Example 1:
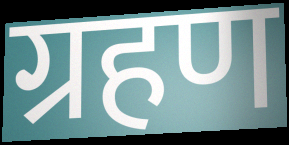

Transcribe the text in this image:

ग्रहण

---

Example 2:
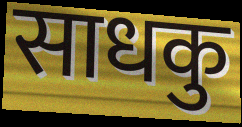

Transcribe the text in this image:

साधकु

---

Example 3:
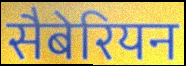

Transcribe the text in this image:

सैबेरियन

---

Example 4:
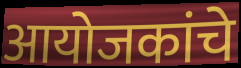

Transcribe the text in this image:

आयोजकांचे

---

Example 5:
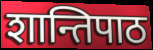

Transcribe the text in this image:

शान्तिपाठ